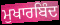
ਮੁਖਾਰਬਿੰਦ